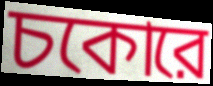
চকোরে